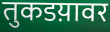
तुकडय़ावर